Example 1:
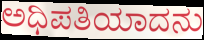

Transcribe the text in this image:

ಅಧಿಪತಿಯಾದನು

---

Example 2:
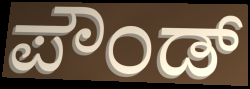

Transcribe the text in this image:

ಪೌಂಡ್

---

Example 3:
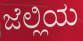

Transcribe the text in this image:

ಜೆಲ್ಲಿಯ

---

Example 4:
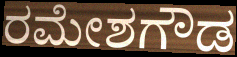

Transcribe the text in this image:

ರಮೇಶಗೌಡ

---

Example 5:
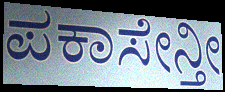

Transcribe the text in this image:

ಪಕಾಸೇನ್ತೀ